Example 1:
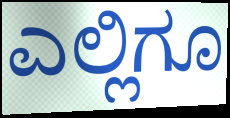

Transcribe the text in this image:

ಎಲ್ಲಿಗೂ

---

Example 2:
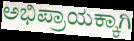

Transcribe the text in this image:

ಅಭಿಪ್ರಾಯಕ್ಕಾಗಿ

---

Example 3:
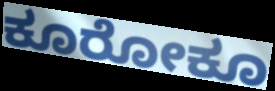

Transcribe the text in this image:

ಕೂರೋಕೂ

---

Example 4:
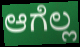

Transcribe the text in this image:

ಆಗೆಲ್ಲ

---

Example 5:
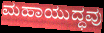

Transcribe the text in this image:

ಮಹಾಯುದ್ಧವು